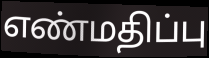
எண்மதிப்பு